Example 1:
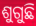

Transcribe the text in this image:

ଶୁଗୁଛି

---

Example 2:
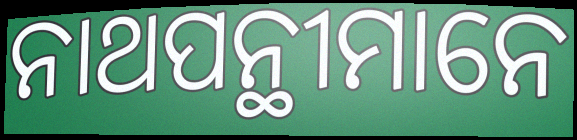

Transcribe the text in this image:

ନାଥପନ୍ଥୀମାନେ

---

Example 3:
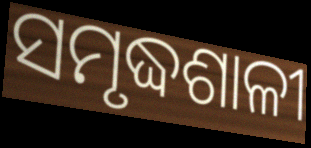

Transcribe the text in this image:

ସମୃଦ୍ଧଶାଳୀ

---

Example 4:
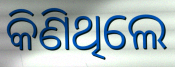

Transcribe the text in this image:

କିଣିଥିଲେ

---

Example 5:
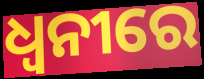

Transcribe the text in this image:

ଧ୍ଵନୀରେ